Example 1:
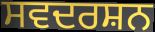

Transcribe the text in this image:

ਸਵਦਰਸ਼ਨ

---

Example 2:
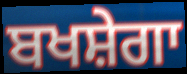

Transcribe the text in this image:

ਬਖਸ਼ੇਗਾ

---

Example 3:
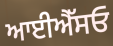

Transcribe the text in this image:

ਆਈਐੱਸਓ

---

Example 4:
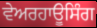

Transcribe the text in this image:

ਵੇਅਰਹਾਊਸਿੰਗ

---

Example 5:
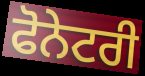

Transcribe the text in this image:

ਫੋਨੇਟਰੀ